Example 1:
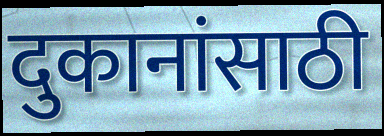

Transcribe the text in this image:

दुकानांसाठी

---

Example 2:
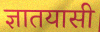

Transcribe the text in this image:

ज्ञातयासी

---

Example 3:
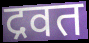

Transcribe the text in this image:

द्रवत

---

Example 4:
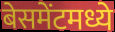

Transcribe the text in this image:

बेसमेंटमध्ये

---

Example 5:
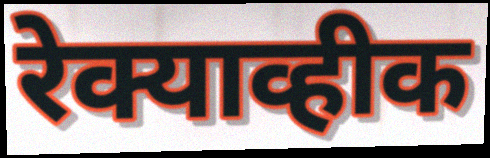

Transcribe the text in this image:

रेक्याव्हीक